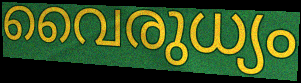
വൈരുധ്യം